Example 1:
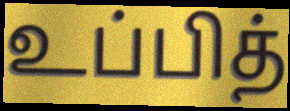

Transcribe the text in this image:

உப்பித்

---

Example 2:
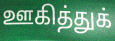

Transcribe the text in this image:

ஊகித்துக்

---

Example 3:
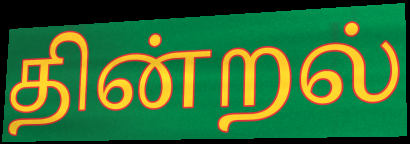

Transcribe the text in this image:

தின்றல்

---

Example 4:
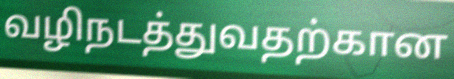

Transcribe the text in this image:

வழிநடத்துவதற்கான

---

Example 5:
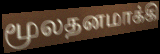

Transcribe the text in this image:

மூலதனமாக்கி